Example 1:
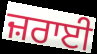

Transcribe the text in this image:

ਜ਼ਰਾਈ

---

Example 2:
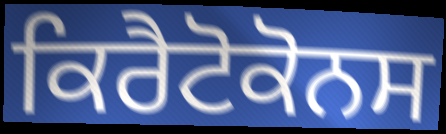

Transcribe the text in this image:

ਕਿਰੈਟੋਕੋਨਸ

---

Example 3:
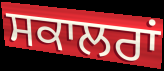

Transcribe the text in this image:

ਸਕਾਲਰਾਂ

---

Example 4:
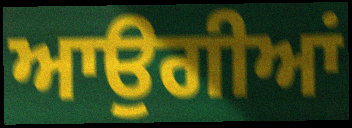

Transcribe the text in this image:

ਆਉਗੀਆਂ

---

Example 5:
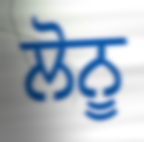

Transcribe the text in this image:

ਲੋਨੂ